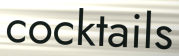
cocktails